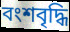
বংশবৃদ্ধি